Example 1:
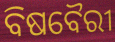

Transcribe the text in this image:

ବିଷବୈରୀ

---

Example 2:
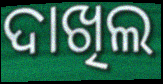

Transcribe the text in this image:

ଦାଖିଲ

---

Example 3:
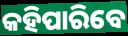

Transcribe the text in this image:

କହିପାରିବେ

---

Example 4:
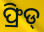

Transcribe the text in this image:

ଫ୍ରିଡ୍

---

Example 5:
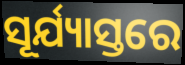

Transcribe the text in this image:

ସୂର୍ଯ୍ୟାସ୍ତରେ